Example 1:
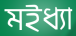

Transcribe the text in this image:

মইধ্যা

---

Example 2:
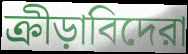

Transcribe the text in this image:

ক্রীড়াবিদেরা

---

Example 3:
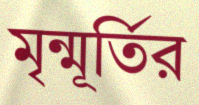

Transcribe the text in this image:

মৃন্মূর্তির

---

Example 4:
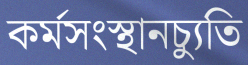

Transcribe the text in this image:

কর্মসংস্থানচ্যুতি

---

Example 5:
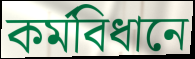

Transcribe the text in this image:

কর্মবিধানে